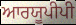
ਆਰਯੂਪੀਪੀ